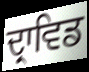
ਦ੍ਰਾਵਿਡ